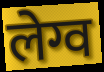
लेग्व